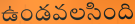
ఉండవలసింది